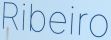
Ribeiro